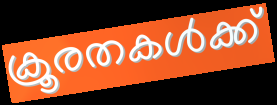
ക്രൂരതകൾക്ക്